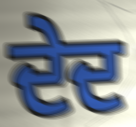
ਦੇਦ